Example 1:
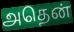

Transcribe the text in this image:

அதென்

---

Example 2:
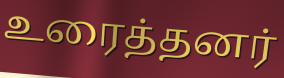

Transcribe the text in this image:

உரைத்தனர்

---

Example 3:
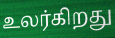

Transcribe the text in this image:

உலர்கிறது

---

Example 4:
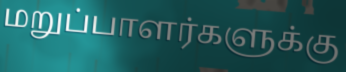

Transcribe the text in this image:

மறுப்பாளர்களுக்கு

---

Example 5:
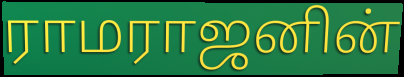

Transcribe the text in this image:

ராமராஜனின்